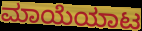
ಮಾಯೆಯಾಟ